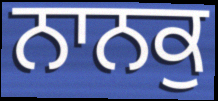
ਨਾਨਕੁ